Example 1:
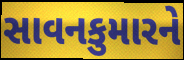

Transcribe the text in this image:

સાવનકુમારને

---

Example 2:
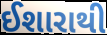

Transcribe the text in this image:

ઈશારાથી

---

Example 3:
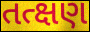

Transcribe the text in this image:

તત્ક્ષણ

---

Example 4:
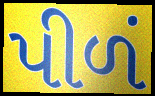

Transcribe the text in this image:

પીળં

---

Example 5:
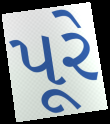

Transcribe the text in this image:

પૂરે